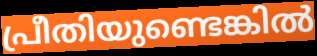
പ്രീതിയുണ്ടെങ്കിൽ